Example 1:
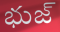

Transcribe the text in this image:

భుజ్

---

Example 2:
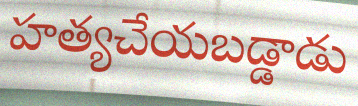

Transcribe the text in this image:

హత్యచేయబడ్డాడు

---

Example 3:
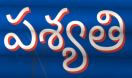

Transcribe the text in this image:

పశ్యతి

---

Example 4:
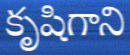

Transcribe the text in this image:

కృషిగాని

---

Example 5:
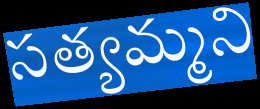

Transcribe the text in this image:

సత్యమ్మని